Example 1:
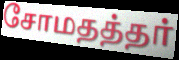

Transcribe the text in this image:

சோமதத்தர்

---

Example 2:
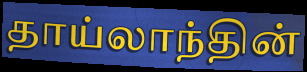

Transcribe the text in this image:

தாய்லாந்தின்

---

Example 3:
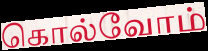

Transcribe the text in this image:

கொல்வோம்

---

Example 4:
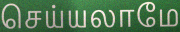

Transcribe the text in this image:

செய்யலாமே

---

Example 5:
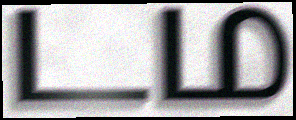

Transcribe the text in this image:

டம